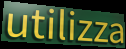
utilizza